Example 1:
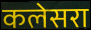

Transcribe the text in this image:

कलेसरा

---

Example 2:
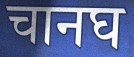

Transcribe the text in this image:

चानघ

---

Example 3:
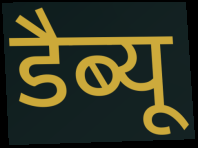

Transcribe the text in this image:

डैब्यू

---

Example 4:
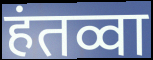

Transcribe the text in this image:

हंतव्वा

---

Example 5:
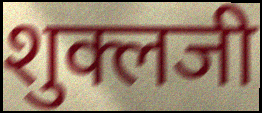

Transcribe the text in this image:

शुक्‍लजी